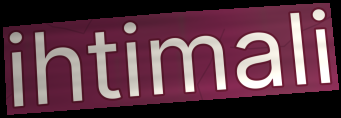
ihtimali